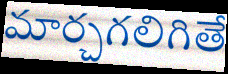
మార్చగలిగితే